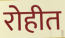
रोहीत